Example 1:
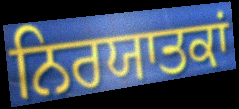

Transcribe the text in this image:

ਨਿਰਯਾਤਕਾਂ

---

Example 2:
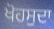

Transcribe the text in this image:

ਖੋਹਸੁਦਾ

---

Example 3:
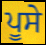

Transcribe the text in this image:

ਪੂਸੇ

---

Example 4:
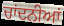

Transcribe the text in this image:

ਚਾਂਦਨੀਆਂ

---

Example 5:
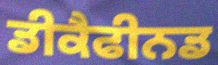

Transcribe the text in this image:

ਡੀਕੈਫੀਨਡ